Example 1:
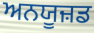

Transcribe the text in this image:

ਅਨਯੂਜ਼ਡ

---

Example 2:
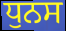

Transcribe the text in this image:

ਧੁਨਸ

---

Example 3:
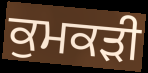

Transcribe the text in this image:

ਕੁਮਕੜੀ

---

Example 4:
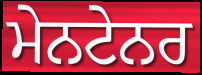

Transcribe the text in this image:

ਮੇਨਟੇਨਰ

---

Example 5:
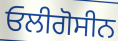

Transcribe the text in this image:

ਓਲੀਗੋਸੀਨ